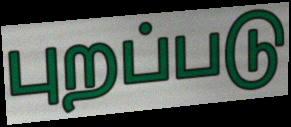
புறப்படு